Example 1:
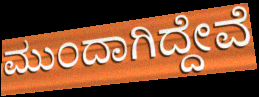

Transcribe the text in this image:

ಮುಂದಾಗಿದ್ದೇವೆ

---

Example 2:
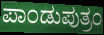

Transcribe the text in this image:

ಪಾಂಡುಪುತ್ರಂ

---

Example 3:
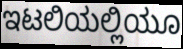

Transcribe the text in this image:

ಇಟಲಿಯಲ್ಲಿಯೂ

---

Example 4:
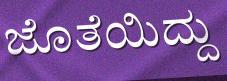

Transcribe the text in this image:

ಜೊತೆಯಿದ್ದು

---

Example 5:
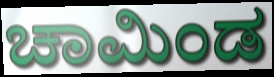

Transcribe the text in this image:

ಚಾಮಿಂಡ